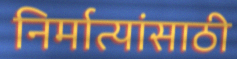
निर्मात्यांसाठी